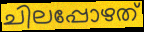
ചിലപ്പോഴത്